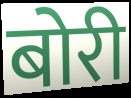
बोरी